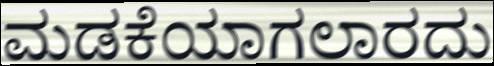
ಮಡಕೆಯಾಗಲಾರದು